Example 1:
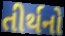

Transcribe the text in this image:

તીર્થનો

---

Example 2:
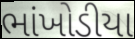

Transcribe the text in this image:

ભાંખોડીયા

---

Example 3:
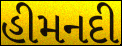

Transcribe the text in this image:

હીમનદી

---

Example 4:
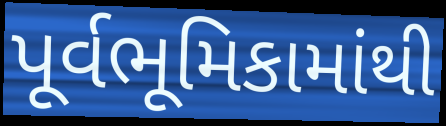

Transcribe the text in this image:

પૂર્વભૂમિકામાંથી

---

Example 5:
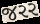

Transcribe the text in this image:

જરર